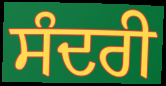
ਸੰਦਰੀ